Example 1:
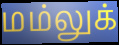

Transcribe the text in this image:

மம்லுக்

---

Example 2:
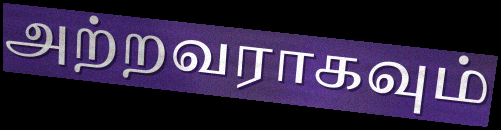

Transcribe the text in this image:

அற்றவராகவும்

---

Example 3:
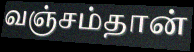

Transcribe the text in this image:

வஞ்சம்தான்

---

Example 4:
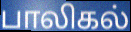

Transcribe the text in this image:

பாலிகல்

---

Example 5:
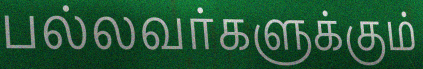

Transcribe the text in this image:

பல்லவர்களுக்கும்